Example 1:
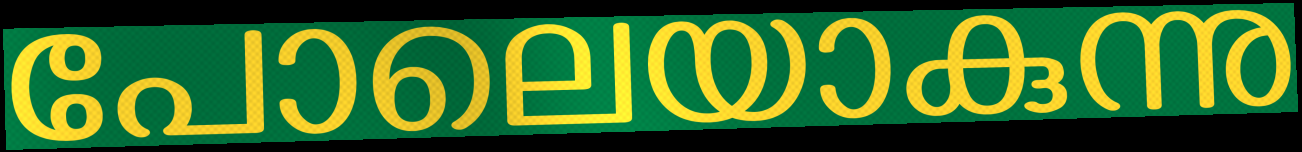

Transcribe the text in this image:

പോലെയാകുന്നു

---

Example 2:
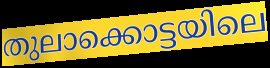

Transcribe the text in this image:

തുലാക്കൊട്ടയിലെ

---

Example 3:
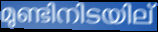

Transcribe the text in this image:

മുണ്ടിനിടയില്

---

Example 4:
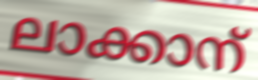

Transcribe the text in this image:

ലാക്കാന്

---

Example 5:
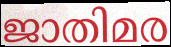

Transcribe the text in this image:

ജാതിമര